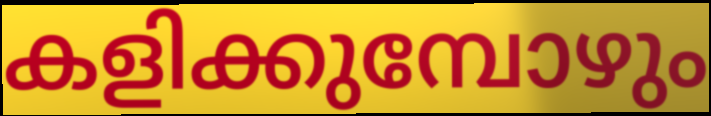
കളിക്കുമ്പോഴും